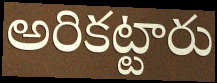
అరికట్టారు